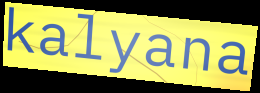
kalyana